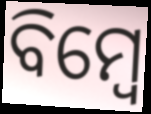
ବିମ୍ବେ